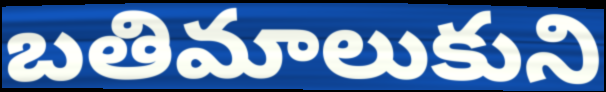
బతిమాలుకుని